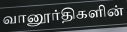
வானூர்திகளின்